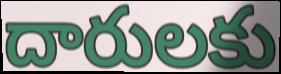
దారులకు